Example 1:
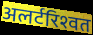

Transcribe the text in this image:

अलर्टरिश्वत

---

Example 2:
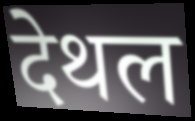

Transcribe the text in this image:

देथल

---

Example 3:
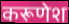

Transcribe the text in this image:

करूणेश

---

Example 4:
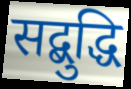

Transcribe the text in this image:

सद्बुद्धि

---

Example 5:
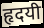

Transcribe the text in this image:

हृदयी